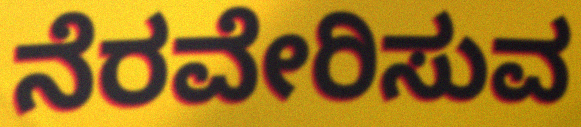
ನೆರವೇರಿಸುವ